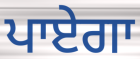
ਪਾਏਗਾ